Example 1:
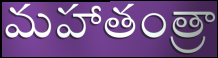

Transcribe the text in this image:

మహాతంత్రా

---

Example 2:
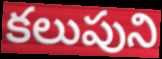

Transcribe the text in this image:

కలుపుని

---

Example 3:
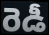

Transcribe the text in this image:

రెడీ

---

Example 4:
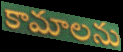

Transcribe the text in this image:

కామాలను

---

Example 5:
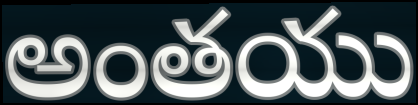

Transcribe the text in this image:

అంతయు